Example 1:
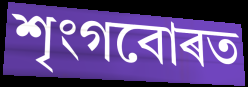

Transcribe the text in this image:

শৃংগবোৰত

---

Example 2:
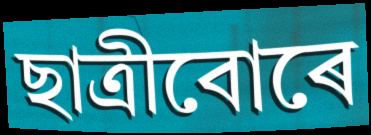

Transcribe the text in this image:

ছাত্ৰীবোৰে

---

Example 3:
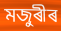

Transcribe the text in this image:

মজুৰীৰ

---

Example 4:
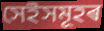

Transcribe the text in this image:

সেইসমূহৰ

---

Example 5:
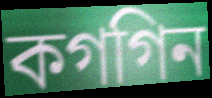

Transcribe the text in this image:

কগগিন